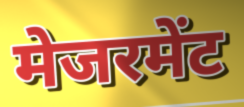
मेजरमेंट